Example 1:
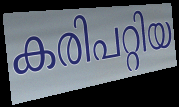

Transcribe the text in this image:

കരിപറ്റിയ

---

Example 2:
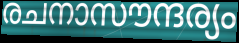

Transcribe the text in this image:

രചനാസൗന്ദര്യം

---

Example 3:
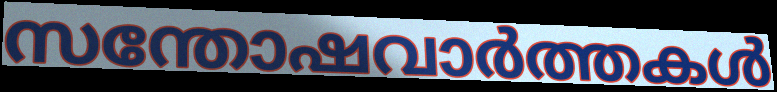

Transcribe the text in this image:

സന്തോഷവാർത്തകൾ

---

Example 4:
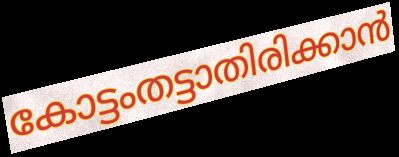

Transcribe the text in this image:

കോട്ടംതട്ടാതിരിക്കാൻ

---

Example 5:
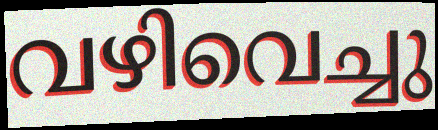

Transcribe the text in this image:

വഴിവെച്ചു